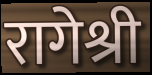
रागेश्री